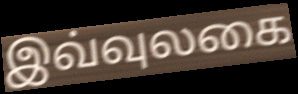
இவ்வுலகை